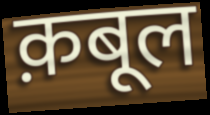
क़बूल